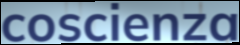
coscienza